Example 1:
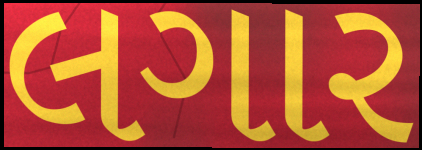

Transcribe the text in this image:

લગાર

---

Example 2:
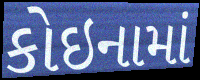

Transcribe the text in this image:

કોઇનામાં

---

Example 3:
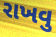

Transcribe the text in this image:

રાખવુ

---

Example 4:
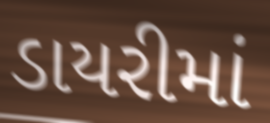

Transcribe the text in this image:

ડાયરીમાં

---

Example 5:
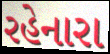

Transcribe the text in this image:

રહેનારા